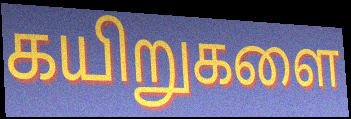
கயிறுகளை